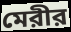
মেরীর